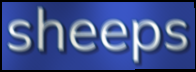
sheeps